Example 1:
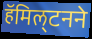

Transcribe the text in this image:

हॅमिल्टनने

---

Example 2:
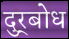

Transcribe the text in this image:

दुर्बोध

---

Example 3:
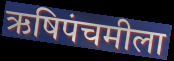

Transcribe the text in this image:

ऋषिपंचमीला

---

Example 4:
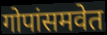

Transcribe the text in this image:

गोपांसमवेत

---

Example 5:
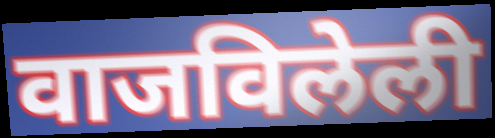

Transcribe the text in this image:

वाजविलेली